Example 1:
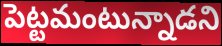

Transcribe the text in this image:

పెట్టమంటున్నాడని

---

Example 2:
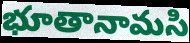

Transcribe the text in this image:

భూతానామసి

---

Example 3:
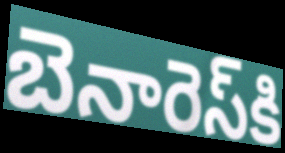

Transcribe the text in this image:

బెనారెస్‌కి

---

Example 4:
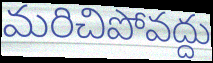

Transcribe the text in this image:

మరిచిపోవద్దు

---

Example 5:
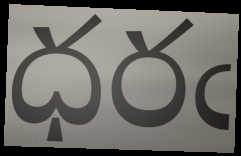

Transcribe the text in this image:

ధరఁ